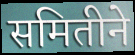
समितीने